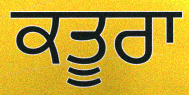
ਕਤੂਰਾ